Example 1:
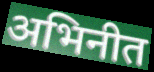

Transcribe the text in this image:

अभिनीत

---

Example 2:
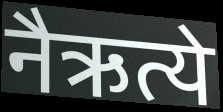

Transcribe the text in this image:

नैऋत्ये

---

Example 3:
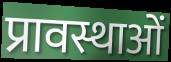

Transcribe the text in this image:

प्रावस्थाओं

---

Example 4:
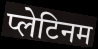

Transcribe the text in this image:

प्लेटिनम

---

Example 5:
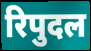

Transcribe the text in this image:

रिपुदल